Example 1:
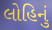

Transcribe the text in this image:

લોહિનું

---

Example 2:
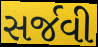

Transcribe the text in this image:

સર્જવી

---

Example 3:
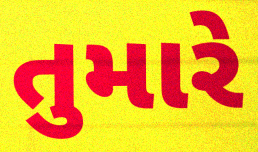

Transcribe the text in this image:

તુમારે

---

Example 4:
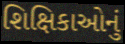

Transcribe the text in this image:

શિક્ષિકાઓનું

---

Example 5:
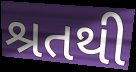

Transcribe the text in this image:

શ્રતથી